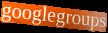
googlegroups